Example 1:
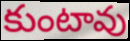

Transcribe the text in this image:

కుంటావు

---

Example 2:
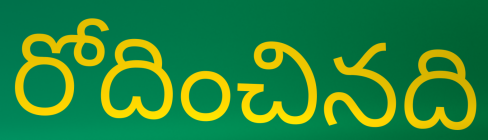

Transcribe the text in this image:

రోదించినది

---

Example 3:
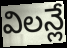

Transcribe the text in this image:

విలన్లే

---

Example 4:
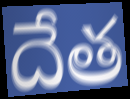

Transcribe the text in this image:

దేత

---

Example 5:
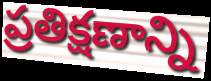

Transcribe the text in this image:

ప్రతిక్షణాన్ని